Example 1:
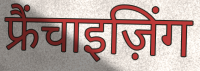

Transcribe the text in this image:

फ्रैंचाइज़िंग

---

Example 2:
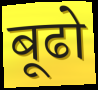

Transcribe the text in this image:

बूढो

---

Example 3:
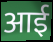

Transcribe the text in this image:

आई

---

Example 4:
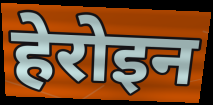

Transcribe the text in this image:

हेरोइन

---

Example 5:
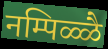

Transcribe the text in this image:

नम्पिळ्ळै